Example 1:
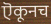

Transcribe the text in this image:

ऎकूनच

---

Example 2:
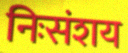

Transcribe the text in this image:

निःसंशय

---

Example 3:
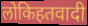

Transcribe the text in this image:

लोकिहतवादी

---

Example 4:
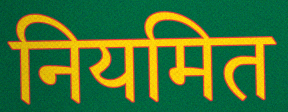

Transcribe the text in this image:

नियमित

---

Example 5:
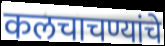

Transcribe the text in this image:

कलचाचण्यांचे